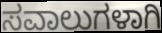
ಸವಾಲುಗಳಾಗಿ